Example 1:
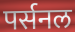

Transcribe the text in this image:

पर्सनल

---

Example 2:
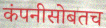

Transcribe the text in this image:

कंपनीसोबतच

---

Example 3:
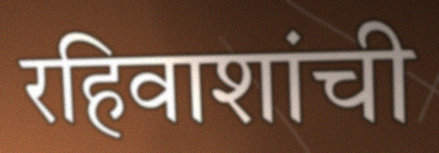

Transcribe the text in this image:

रहिवाशांची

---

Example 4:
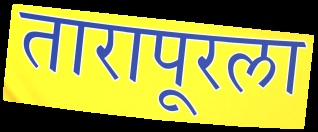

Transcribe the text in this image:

तारापूरला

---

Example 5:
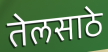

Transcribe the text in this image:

तेलसाठे